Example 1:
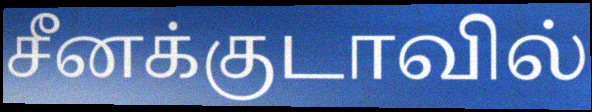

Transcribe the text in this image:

சீனக்குடாவில்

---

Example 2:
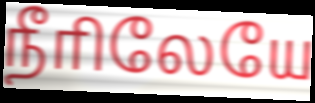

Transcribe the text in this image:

நீரிலேயே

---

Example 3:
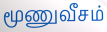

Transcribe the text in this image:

மூணுவீசம்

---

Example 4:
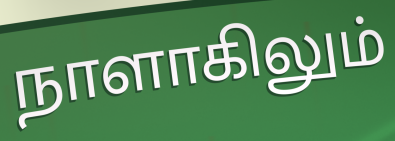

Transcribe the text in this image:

நாளாகிலும்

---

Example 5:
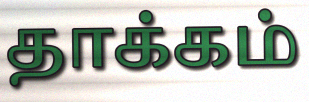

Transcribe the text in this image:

தாக்கம்